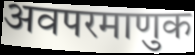
अवपरमाणुक